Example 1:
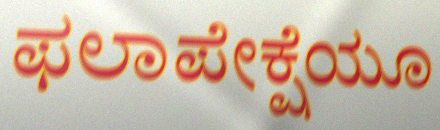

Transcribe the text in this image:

ಫಲಾಪೇಕ್ಷೆಯೂ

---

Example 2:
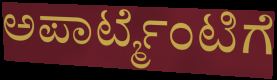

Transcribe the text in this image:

ಅಪಾರ್ಟ್ಮೆಂಟಿಗೆ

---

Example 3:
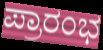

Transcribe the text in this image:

ಪ್ರಾರಂಭ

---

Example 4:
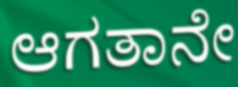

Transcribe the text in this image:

ಆಗತಾನೇ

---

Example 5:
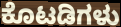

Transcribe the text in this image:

ಕೊಟಡಿಗಳು